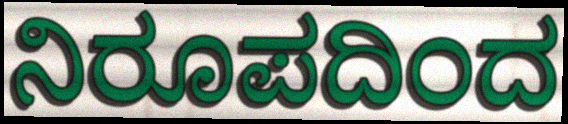
ನಿರೂಪದಿಂದ